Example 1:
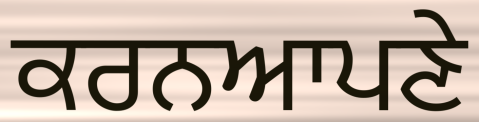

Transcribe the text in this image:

ਕਰਨਆਪਣੇ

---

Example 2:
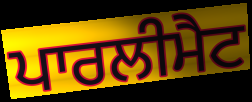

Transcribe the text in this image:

ਪਾਰਲੀਮੈਟ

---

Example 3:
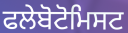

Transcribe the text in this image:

ਫਲੇਬੋਟੋਮਿਸਟ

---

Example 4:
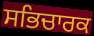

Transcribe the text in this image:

ਸਭਿਚਾਰਕ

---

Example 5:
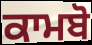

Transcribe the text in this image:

ਕਾਮਬੋ